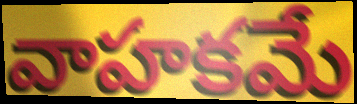
వాహకమే